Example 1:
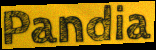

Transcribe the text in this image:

Pandia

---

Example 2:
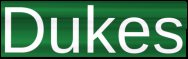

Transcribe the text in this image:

Dukes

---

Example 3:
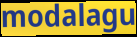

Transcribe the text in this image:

modalagu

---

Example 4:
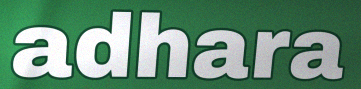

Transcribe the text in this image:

adhara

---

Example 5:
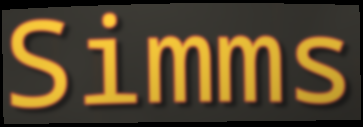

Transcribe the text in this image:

Simms